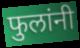
फुलांनी